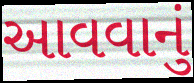
આવવાનું